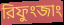
রিফুংজাং